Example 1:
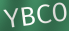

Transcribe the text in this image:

YBCO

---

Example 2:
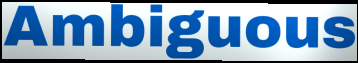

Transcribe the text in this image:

Ambiguous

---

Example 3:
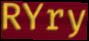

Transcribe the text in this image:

RYry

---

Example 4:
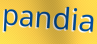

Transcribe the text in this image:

pandia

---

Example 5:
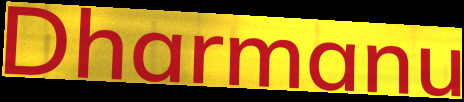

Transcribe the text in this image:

Dharmanu